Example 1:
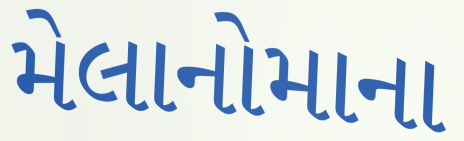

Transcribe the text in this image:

મેલાનોમાના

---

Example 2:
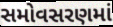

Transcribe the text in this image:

સમોવસરણમાં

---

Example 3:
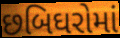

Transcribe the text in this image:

છબિઘરોમાં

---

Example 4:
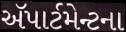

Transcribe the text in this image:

ઍપાર્ટમેન્ટના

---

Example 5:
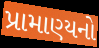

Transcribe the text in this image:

પ્રામાણ્યનો